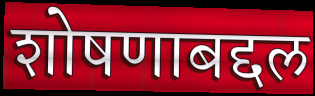
शोषणाबद्दल